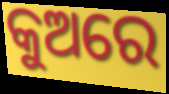
କୁଅରେ